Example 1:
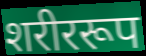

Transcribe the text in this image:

शरीररूप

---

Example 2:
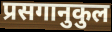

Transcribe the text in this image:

प्रसगानुकुल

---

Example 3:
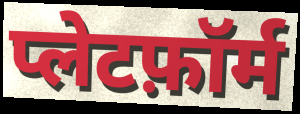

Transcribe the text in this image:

प्लेटफ़ॉर्म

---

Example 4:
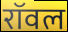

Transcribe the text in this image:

रॉवल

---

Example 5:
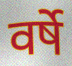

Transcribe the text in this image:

वर्षे